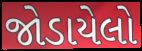
જોડાયેલો